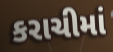
કરાચીમાં